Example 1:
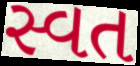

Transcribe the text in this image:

સ્વત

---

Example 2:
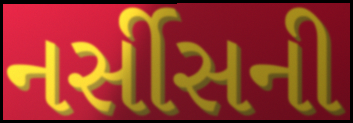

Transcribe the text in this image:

નર્સીસની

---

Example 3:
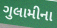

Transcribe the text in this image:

ગુલામીના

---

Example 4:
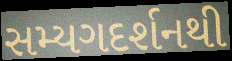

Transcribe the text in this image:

સમ્યગદર્શનથી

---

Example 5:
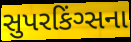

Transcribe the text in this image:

સુપરકિંગ્સના